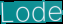
Lode